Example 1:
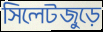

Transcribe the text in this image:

সিলেটজুড়ে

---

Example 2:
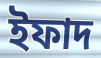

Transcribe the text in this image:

ইফাদ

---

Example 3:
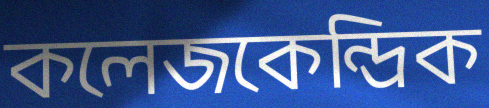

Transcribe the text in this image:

কলেজকেন্দ্রিক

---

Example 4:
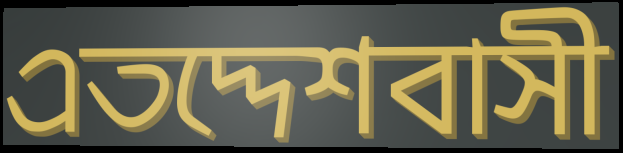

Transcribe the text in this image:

এতদ্দেশবাসী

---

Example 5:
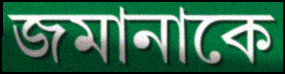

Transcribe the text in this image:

জমানাকে